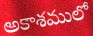
అకాశములో